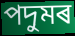
পদুমৰ